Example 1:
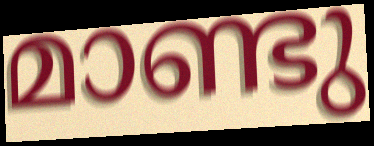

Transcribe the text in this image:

മാണ്ടു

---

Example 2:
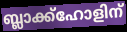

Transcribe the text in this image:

ബ്ലാക്ക്ഹോളിന്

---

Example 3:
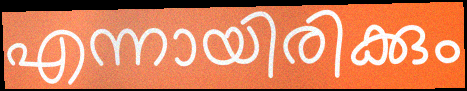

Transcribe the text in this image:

എന്നായിരിക്കും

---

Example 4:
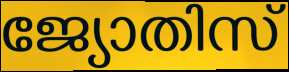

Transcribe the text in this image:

ജ്യോതിസ്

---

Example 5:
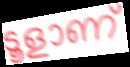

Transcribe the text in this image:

ടൂളാണ്